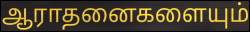
ஆராதனைகளையும்